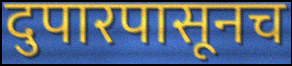
दुपारपासूनच